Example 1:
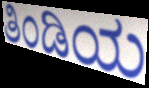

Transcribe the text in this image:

ತಿಂಡಿಯ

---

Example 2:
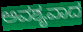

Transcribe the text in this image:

ಅವಶ್ಯವಾದ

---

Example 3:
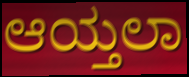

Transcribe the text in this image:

ಆಯ್ತಲಾ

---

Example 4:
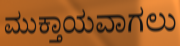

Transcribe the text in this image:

ಮುಕ್ತಾಯವಾಗಲು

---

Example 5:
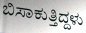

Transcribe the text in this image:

ಬಿಸಾಕುತ್ತಿದ್ದಳು